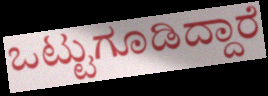
ಒಟ್ಟುಗೂಡಿದ್ದಾರೆ